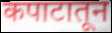
कपाटातून